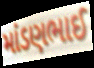
માંડણભાઈ